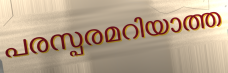
പരസ്പരമറിയാത്ത